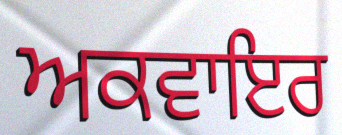
ਅਕਵਾਇਰ